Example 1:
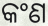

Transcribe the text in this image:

କଂଣ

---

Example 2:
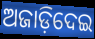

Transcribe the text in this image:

ଅଜାଡ଼ିଦେଇ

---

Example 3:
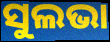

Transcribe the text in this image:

ସୁଲଭା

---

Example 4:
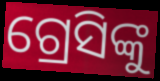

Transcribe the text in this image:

ଗ୍ରେସିଙ୍କୁ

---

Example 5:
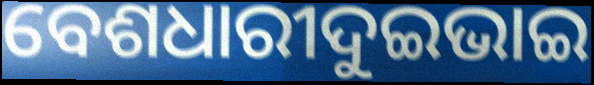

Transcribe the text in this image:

ବେଶଧାରୀଦୁଇଭାଇ